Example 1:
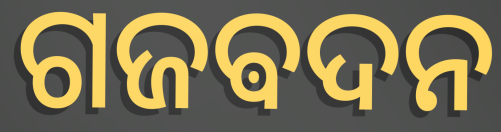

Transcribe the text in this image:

ଗଜଵଦନ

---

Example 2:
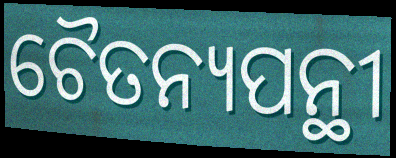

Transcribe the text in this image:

ଚୈତନ୍ୟପନ୍ଥୀ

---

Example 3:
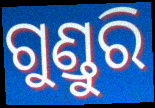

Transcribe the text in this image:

ଗୁଣ୍ଡୁରି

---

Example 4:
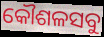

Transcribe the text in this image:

କୌଶଳସବୁ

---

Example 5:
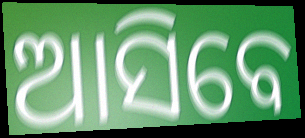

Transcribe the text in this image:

ଆସିବେ